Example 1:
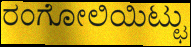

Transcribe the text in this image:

ರಂಗೋಲಿಯಿಟ್ಟು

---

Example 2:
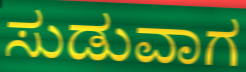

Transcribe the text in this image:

ಸುಡುವಾಗ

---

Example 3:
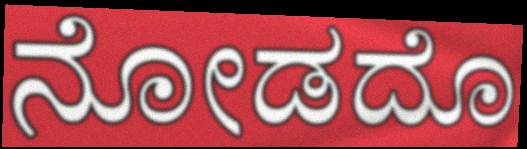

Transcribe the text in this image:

ನೋಡದೊ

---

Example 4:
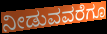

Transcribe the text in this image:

ನೀಡುವವರೆಗೂ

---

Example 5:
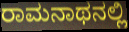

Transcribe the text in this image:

ರಾಮನಾಥನಲ್ಲಿ